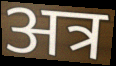
अत्र